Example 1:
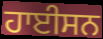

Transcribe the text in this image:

ਹਾਈਸਨ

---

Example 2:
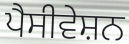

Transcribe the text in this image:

ਪੈਸੀਵੇਸ਼ਨ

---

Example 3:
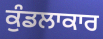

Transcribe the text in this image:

ਕੁੰਡਲਾਕਾਰ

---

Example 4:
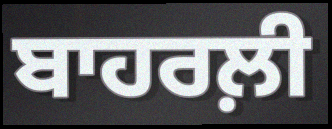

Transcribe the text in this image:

ਬਾਹਰਲ਼ੀ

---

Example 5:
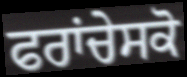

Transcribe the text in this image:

ਫਰਾਂਚੇਸਕੋ